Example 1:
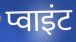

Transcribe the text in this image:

प्‍वाइंट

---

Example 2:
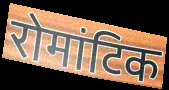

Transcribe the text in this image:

रोमांटिक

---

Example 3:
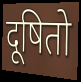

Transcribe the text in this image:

दूषितो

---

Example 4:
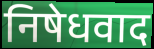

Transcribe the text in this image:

निषेधवाद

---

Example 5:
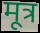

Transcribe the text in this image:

मूत्र